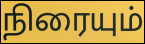
நிரையும்